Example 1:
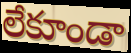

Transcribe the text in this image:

లేకూండా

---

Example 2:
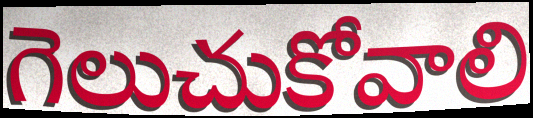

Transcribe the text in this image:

గెలుచుకోవాలి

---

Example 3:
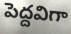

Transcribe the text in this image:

పెద్దవిగా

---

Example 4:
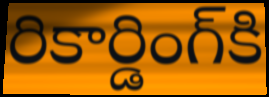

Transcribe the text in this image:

రికార్డింగ్‌కి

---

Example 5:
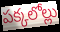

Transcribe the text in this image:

పక్కలోల్లు